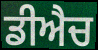
ਡੀਐਚ